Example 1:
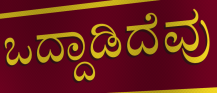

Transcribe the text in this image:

ಒದ್ದಾಡಿದೆವು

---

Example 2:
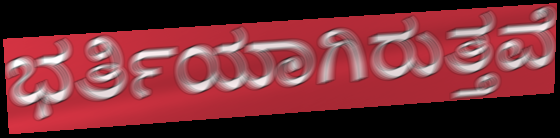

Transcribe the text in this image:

ಭರ್ತಿಯಾಗಿರುತ್ತವೆ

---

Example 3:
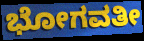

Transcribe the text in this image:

ಭೋಗವತೀ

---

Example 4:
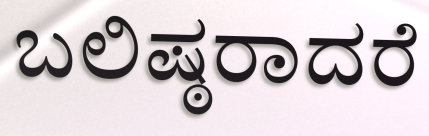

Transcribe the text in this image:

ಬಲಿಷ್ಠರಾದರೆ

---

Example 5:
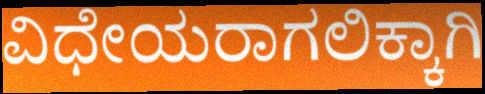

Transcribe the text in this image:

ವಿಧೇಯರಾಗಲಿಕ್ಕಾಗಿ